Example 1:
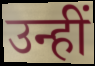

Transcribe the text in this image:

उन्हीं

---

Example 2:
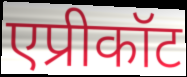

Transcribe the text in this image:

एप्रीकॉट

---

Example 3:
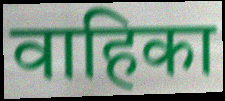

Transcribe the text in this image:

वाहिका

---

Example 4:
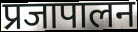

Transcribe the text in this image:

प्रजापालन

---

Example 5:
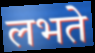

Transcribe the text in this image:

लभते